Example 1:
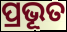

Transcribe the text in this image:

ପ୍ରଭୂତ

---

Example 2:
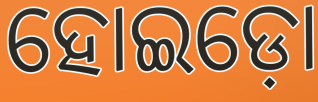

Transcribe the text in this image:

ହୋଇଡ଼ୋ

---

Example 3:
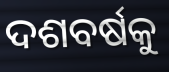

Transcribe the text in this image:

ଦଶବର୍ଷକୁ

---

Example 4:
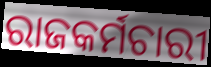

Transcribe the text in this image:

ରାଜକର୍ମଚାରୀ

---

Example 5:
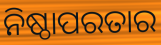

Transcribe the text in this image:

ନିଷ୍ଠାପରତାର